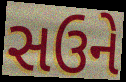
સઉને